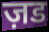
ज़ड